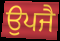
ਉਪਜੈ